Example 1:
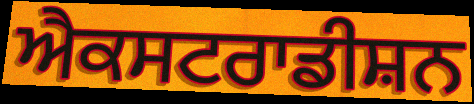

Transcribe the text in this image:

ਐਕਸਟਰਾਡੀਸ਼ਨ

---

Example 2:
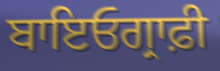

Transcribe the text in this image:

ਬਾਇਓਗ੍ਰਾਫ਼ੀ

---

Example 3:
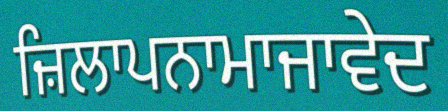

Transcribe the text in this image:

ਜ਼ਿਲਾਪਨਾਮਾਜਾਵੇਦ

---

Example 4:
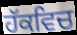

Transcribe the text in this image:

ਹੱਕਵਿਚ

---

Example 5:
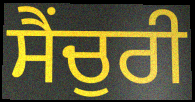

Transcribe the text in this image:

ਸੈਂਚੁਰੀ